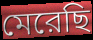
মেরেছি